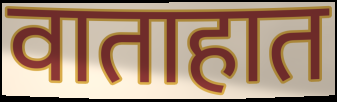
वाताहात